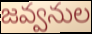
జవ్వనుల